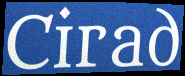
Cirad